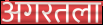
अगरतला